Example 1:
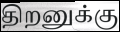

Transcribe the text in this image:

திறனுக்கு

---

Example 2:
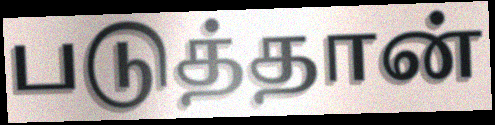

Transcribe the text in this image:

படுத்தான்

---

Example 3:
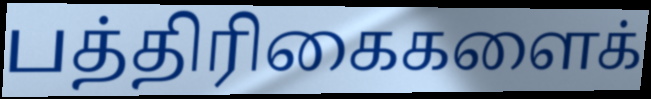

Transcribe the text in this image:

பத்திரிகைகளைக்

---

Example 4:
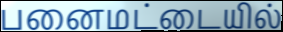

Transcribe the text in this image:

பனைமட்டையில்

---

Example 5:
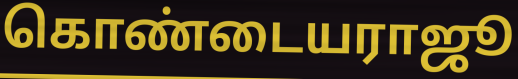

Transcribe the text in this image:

கொண்டையராஜூ